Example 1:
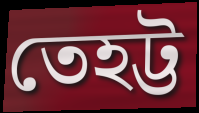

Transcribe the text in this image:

তেহট্ট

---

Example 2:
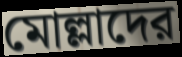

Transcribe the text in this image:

মোল্লাদের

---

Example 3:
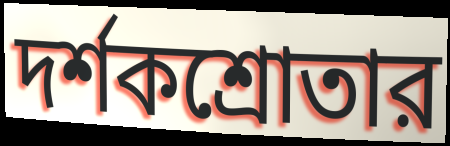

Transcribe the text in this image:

দর্শকশ্রোতার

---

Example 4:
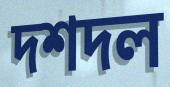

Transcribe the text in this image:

দশদল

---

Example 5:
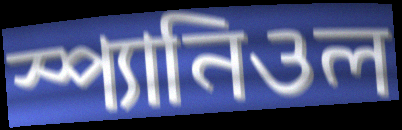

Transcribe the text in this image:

স্প্যানিওল